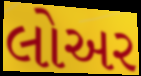
લોઅર